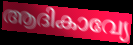
ആദികാവ്യേ